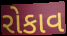
રોકાવ